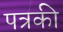
पत्रकी